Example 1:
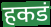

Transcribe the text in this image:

हकडं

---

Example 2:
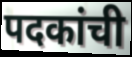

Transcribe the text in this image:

पदकांची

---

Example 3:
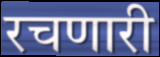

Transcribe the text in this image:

रचणारी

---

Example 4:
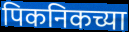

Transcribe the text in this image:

पिकनिकच्या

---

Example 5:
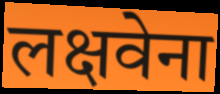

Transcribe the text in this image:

लक्षवेना